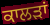
ਕਾਲੜਾਂ